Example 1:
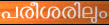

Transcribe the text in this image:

പരീശരിലും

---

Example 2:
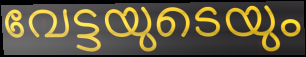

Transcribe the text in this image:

വേട്ടയുടെയും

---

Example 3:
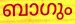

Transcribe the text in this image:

ബാഗും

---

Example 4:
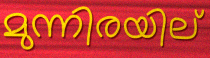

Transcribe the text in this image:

മുന്നിരയില്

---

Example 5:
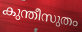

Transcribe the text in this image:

കുന്തീസുതം